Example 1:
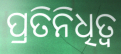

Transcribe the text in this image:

ପ୍ରତିନିଧିତ୍ୱ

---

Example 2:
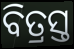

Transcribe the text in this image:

ବିତ୍ରସ୍ତ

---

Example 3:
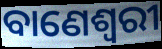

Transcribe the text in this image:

ବାଣେଶ୍ୱରୀ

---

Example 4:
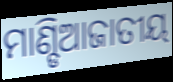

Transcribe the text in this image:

ମାଣ୍ଡିଆଜାତୀୟ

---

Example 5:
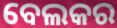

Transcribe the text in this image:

ବେଲକର